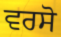
ਵਰਸੋ